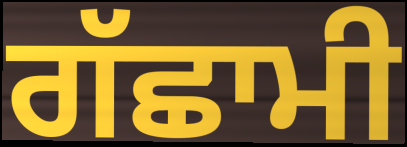
ਗੱਛਾਮੀ